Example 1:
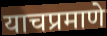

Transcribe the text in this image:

याचप्रमाणे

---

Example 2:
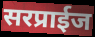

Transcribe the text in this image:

सरप्राईज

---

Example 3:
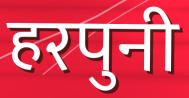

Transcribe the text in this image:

हरपुनी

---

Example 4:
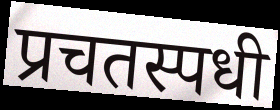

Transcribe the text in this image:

प्रचतस्पधी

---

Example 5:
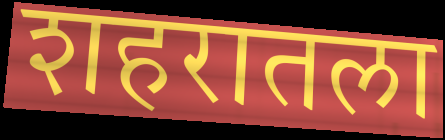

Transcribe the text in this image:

शहरातला